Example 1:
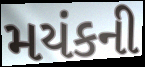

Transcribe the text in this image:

મયંકની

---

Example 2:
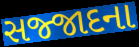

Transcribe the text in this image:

સજ્જાદના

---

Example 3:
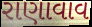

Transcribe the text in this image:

રાણાવાવ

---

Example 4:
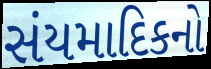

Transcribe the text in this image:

સંયમાદિકનો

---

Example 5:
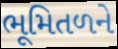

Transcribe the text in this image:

ભૂમિતળને